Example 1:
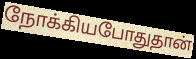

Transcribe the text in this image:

நோக்கியபோதுதான்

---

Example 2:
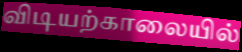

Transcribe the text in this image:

விடியற்காலையில்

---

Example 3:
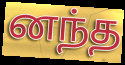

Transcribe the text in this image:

னந்த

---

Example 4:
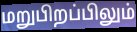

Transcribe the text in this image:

மறுபிறப்பிலும்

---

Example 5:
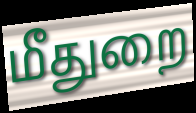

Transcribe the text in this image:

மீதுறை